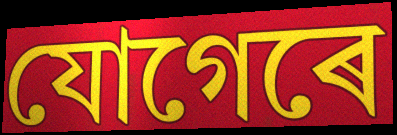
যোগেৰে